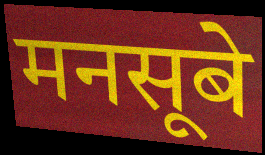
मनसूबे